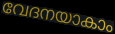
വേദനയാകാം